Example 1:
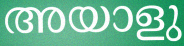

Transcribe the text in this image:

അയാളു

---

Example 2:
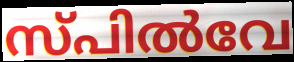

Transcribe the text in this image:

സ്പിൽവേ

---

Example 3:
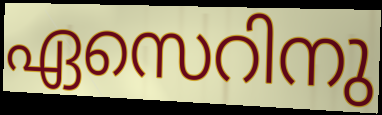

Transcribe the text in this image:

ഏസെറിനു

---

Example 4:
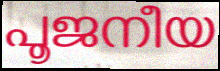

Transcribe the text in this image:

പൂജനീയ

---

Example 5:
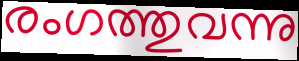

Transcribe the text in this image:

രംഗത്തുവന്നു